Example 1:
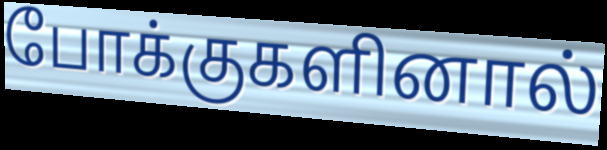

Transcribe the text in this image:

போக்குகளினால்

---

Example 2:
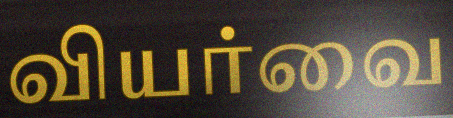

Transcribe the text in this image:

வியர்வை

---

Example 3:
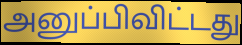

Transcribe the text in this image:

அனுப்பிவிட்டது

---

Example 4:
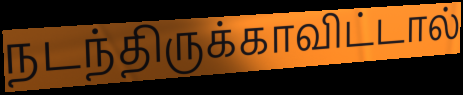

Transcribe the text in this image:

நடந்திருக்காவிட்டால்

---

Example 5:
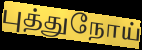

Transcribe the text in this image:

புத்துநோய்